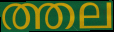
ത്തല